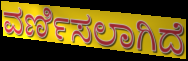
ವರ್ಣಿಸಲಾಗಿದೆ